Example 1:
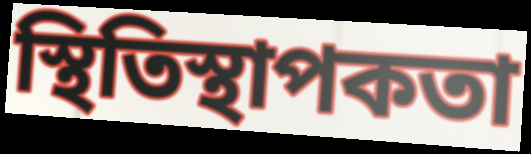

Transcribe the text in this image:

স্থিতিস্থাপকতা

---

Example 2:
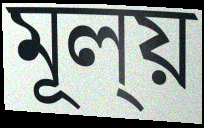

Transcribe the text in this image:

মূল্য়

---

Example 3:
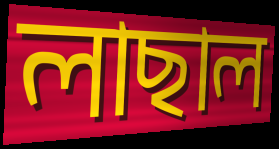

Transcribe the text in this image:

লাছাল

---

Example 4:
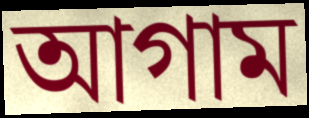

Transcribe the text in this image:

আগাম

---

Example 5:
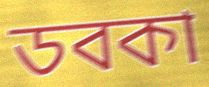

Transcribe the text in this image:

ডবকা